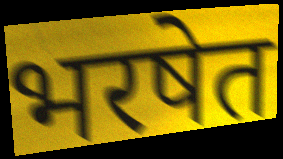
भरषेत